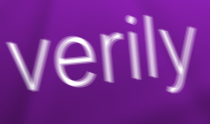
verily